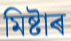
মিষ্টাৰ